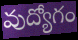
వుద్యోగం